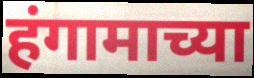
हंगामाच्या